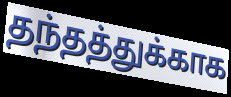
தந்தத்துக்காக